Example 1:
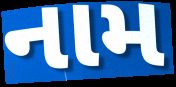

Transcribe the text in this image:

નામ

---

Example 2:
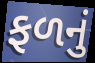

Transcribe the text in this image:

ફળનું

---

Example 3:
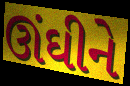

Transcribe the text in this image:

ઊંઘીને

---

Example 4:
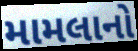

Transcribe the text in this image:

મામલાનો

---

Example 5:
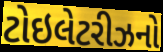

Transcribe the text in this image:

ટોઇલેટરીઝનો